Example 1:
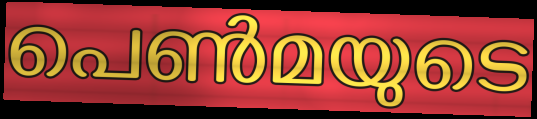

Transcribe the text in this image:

പെൺമയുടെ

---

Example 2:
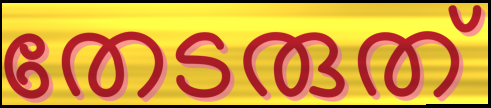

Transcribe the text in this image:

തേടരുത്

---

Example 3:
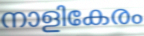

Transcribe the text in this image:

നാളികേരം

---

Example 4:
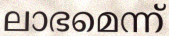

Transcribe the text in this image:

ലാഭമെന്ന്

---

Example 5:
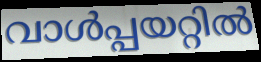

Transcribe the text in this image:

വാൾപ്പയറ്റിൽ